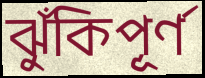
ঝুঁকিপূর্ণ